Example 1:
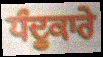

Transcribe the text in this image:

ਧੰਦੂਕਾਰੇ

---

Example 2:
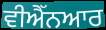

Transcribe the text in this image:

ਵੀਐੱਨਆਰ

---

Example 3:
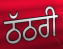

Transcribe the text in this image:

ਠੱਠਰੀ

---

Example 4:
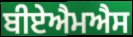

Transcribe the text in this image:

ਬੀਏਐਮਐਸ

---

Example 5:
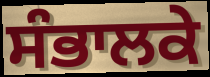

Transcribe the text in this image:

ਸੰਭਾਲਕੇ